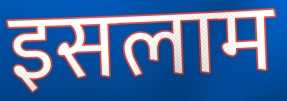
इसलाम